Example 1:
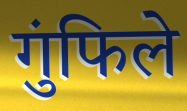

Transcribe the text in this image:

गुंफिले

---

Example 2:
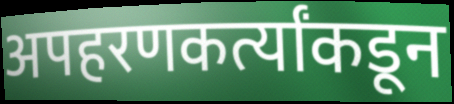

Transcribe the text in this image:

अपहरणकर्त्यांकडून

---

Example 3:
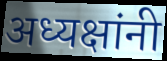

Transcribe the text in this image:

अध्यक्षांनी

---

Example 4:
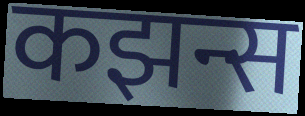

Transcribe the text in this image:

कझन्स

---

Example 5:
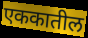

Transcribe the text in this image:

एककातील